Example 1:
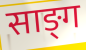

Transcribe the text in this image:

साङ्ग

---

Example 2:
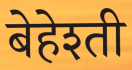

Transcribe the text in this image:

बेहेश्ती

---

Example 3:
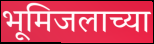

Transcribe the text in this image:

भूमिजलाच्या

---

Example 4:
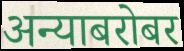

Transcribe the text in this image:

अन्याबरोबर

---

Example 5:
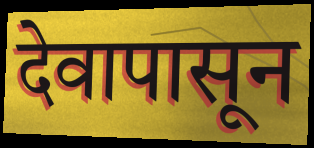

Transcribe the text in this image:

देवापासून